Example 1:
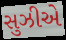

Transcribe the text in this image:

સુઝીએ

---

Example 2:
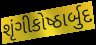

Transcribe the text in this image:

શૃંગીકોષ્ઠાર્બુદ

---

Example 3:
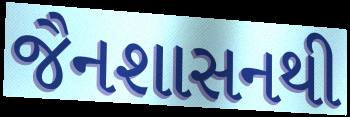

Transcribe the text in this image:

જૈનશાસનથી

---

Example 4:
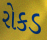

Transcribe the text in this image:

રોકડ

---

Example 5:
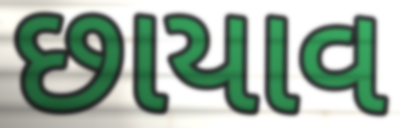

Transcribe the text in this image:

છાયાવ